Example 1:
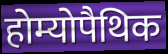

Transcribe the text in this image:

होम्‍योपैथिक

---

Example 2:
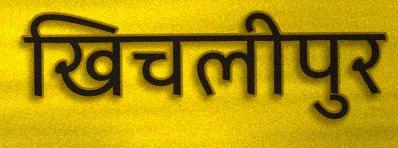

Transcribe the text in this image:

खिचलीपुर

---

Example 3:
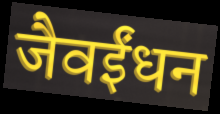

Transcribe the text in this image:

जैवईंधन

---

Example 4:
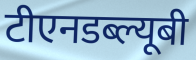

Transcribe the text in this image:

टीएनडब्ल्यूबी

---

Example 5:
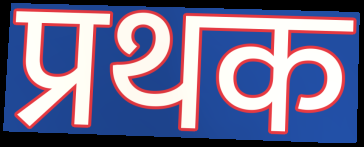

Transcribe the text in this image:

प्रथक